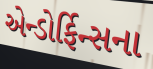
એન્ડોર્ફિન્સના